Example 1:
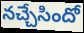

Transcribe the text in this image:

నచ్చేసిందో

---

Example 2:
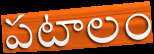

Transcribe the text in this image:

పటాలం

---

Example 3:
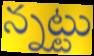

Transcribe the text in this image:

న్నట్టు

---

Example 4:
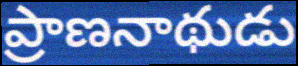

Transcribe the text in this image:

ప్రాణనాథుడు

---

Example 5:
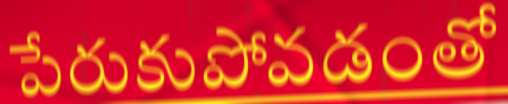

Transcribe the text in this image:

పేరుకుపోవడంతో